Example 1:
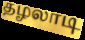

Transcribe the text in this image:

தழலாடி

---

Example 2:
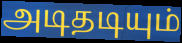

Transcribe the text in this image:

அடிதடியும்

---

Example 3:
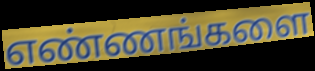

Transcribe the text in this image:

எண்ணங்களை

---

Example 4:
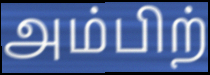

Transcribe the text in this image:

அம்பிற்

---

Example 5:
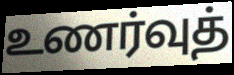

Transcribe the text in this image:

உணர்வுத்